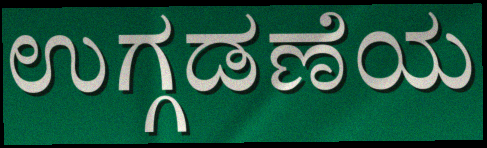
ಉಗ್ಗಡಣೆಯ